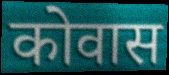
कोवास